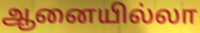
ஆனையில்லா